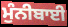
ਮੁੰਨੀਬਾਈ